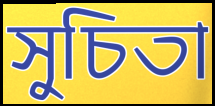
সুচিতা